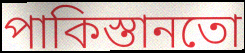
পাকিস্তানতো